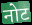
नोट